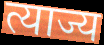
त्याज्य